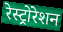
रेस्ट्रोरेशन